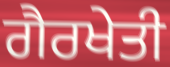
ਗੈਰਖੇਤੀ